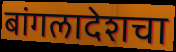
बांगलादेशचा